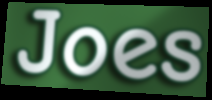
Joes